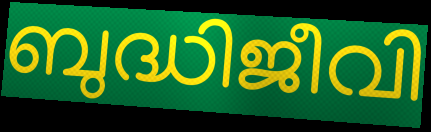
ബുദ്ധിജീവി